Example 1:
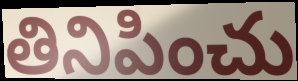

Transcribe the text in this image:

తినిపించు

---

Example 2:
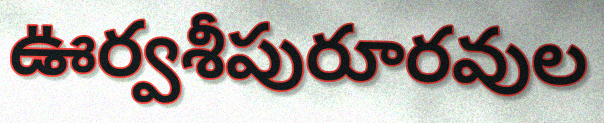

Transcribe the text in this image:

ఊర్వశీపురూరవుల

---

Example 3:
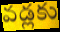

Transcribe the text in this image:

వడ్లకు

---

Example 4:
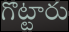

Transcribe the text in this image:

గొట్టారు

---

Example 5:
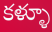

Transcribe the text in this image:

కళ్ళూ